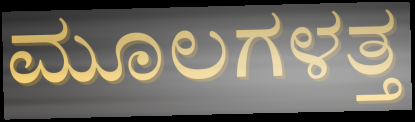
ಮೂಲಗಳತ್ತ